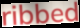
ribbed